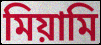
মিয়ামি